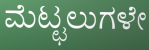
ಮೆಟ್ಟಲುಗಳೇ